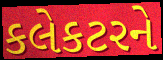
કલેકટરને